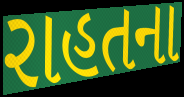
રાહતના